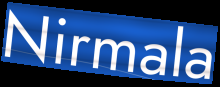
Nirmala